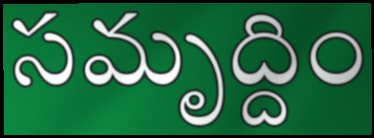
సమృద్దిం